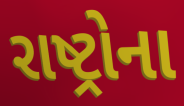
રાષ્ટ્રોના